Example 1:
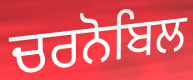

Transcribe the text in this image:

ਚਰਨੋਬਿਲ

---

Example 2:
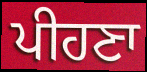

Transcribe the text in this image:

ਪੀਹਣਾ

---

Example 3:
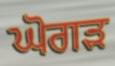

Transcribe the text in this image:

ਘੋਗੜ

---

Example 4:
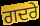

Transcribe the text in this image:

ਗਦਰੇ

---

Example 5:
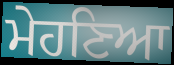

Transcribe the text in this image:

ਮੇਹਣਿਆ